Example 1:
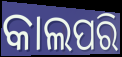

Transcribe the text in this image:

କାଲପରି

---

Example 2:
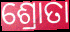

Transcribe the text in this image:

ଶ୍ରୋତା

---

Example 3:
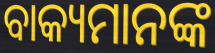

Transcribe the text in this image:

ବାକ୍ୟମାନଙ୍କ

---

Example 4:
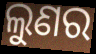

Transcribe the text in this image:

ଲୁଣର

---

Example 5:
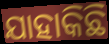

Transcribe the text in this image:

ଯାହାକିଛି